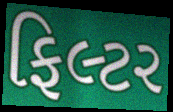
ફિલ્ટર